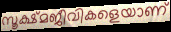
സൂക്ഷ്മജീവികളെയാണ്